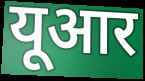
यूआर